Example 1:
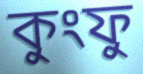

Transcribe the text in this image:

কুংফু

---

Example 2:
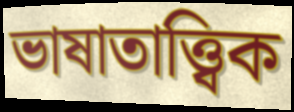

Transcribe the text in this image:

ভাষাতাত্ত্বিক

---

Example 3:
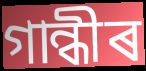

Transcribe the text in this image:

গান্ধীৰ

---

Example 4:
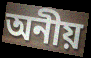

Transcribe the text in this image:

অনীয়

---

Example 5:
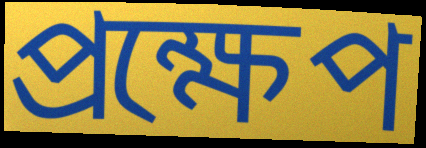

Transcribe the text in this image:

প্ৰক্ষেপ